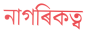
নাগৰিকত্ব